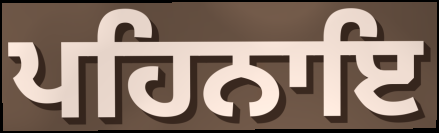
ਪਹਿਨਾਇ